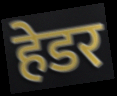
हेडर